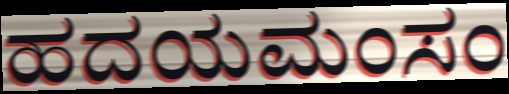
ಹದಯಮಂಸಂ